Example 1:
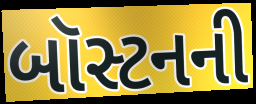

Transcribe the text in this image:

બૉસ્ટનની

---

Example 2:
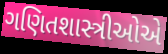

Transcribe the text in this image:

ગણિતશાસ્ત્રીઓએ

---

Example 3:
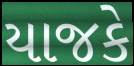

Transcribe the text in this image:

યાજકે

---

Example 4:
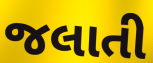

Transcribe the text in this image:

જલાતી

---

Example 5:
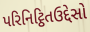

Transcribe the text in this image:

પરિનિટ્ઠિતઉદ્દેસો